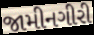
જામીનગીરી